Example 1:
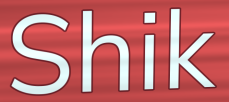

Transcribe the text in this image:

Shik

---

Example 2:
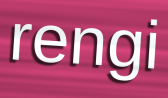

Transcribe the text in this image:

rengi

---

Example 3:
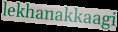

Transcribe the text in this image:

lekhanakkaagi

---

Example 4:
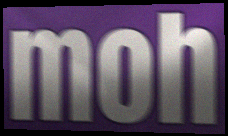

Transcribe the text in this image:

moh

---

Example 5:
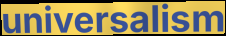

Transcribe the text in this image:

universalism